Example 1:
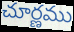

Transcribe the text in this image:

చూర్ణము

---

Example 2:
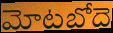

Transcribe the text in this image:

మోటబోదె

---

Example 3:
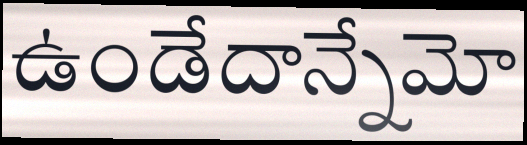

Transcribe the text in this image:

ఉండేదాన్నేమో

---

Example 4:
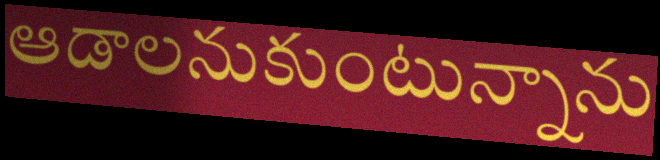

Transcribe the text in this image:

ఆడాలనుకుంటున్నాను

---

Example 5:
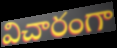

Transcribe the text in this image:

విచారంగా